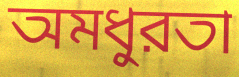
অমধুরতা